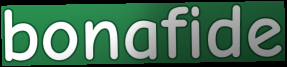
bonafide